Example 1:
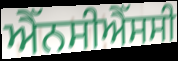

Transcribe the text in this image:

ਐੱਨਸੀਐੱਸਸੀ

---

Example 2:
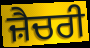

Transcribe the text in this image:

ਜ਼ੈਚਰੀ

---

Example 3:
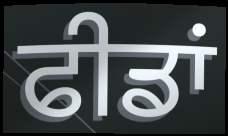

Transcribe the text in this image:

ਫੀਡਾਂ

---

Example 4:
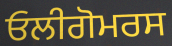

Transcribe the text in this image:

ਓਲੀਗੋਮਰਸ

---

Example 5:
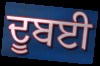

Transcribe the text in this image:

ਦੂਬਈ